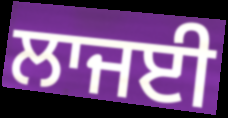
ਲਾਜਈ